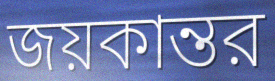
জয়কান্তর